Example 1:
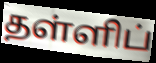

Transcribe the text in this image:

தள்ளிப்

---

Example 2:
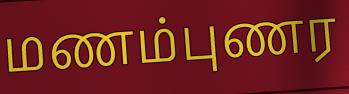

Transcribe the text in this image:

மணம்புணர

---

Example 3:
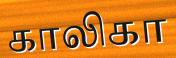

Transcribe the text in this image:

காலிகா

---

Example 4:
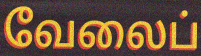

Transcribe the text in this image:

வேலைப்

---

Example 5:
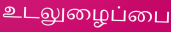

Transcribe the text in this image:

உடலுழைப்பை